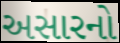
અસારનો